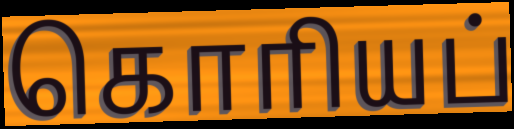
கொரியப்